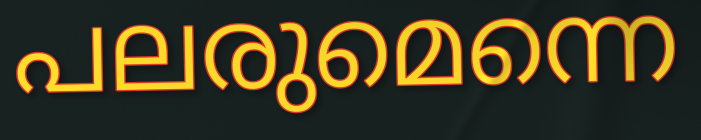
പലരുമെന്നെ